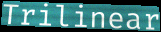
Trilinear